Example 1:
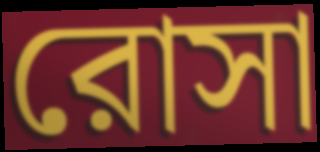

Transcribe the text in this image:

রোসা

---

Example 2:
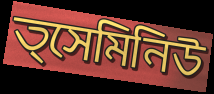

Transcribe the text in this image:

ত্সেমিনিউ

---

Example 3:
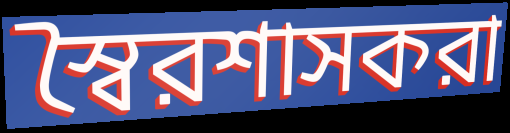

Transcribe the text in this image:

স্বৈরশাসকরা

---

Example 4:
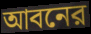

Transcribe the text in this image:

আবনের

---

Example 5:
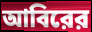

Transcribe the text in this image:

আবিরের